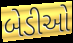
બેડીઓ